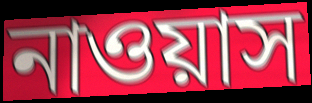
নাওয়াস